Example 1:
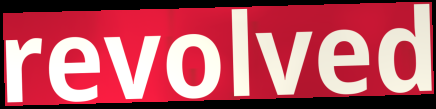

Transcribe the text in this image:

revolved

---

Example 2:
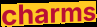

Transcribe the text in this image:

charms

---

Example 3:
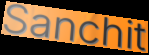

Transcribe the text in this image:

Sanchit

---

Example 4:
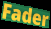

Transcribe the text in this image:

Fader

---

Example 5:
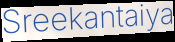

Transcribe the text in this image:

Sreekantaiya